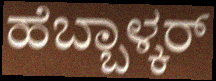
ಹೆಬ್ಬಾಳ್ಕರ್